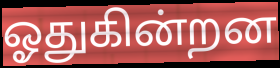
ஓதுகின்றன